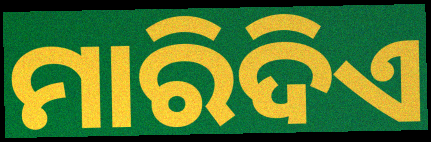
ମାରିଦିଏ